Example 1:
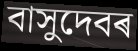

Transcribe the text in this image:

বাসুদেবৰ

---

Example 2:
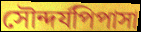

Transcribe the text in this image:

সৌন্দৰ্যপিপাসা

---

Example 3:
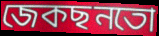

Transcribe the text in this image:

জেকছনতো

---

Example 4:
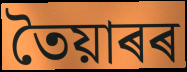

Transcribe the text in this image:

তৈয়াৰৰ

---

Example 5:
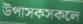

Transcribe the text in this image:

উপাসকসকলে